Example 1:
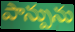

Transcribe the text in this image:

పాన్పును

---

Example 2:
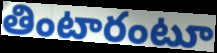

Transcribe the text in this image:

తింటారంటూ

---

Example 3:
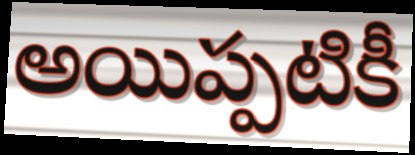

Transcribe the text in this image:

అయిప్పటికీ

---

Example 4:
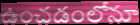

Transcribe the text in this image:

ఉంచడంలోనూ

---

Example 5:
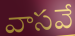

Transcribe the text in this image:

వాసవే